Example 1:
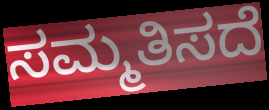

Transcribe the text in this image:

ಸಮ್ಮತಿಸದೆ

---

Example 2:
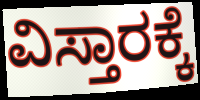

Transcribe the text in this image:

ವಿಸ್ತಾರಕ್ಕೆ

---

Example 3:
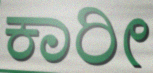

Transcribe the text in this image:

ಕಾರೀ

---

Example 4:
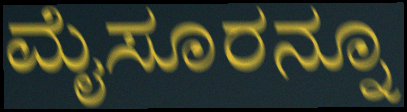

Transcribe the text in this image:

ಮೈಸೂರನ್ನೂ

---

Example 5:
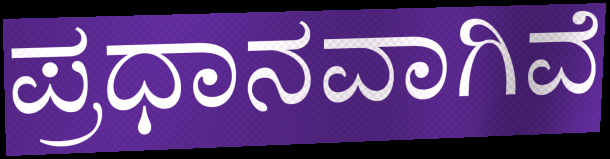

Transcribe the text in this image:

ಪ್ರಧಾನವಾಗಿವೆ